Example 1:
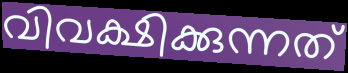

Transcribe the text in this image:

വിവക്ഷിക്കുന്നത്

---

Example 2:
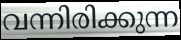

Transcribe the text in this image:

വന്നിരിക്കുന്ന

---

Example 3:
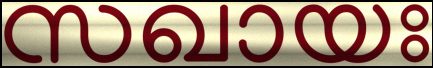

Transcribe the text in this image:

സഖായഃ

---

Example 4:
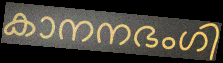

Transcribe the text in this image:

കാനനഭംഗി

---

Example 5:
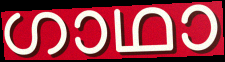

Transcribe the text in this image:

ഗാഥാ